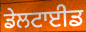
ਡੇਲਟਾਈਡ